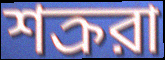
শক্ররা